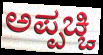
ಅಪ್ಪಚ್ಚಿ